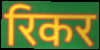
रिकर